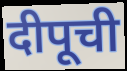
दीपूची